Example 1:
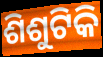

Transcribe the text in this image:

ଶିଶୁଟିକି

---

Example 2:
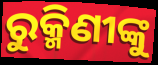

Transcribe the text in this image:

ରୁକ୍ମିଣୀଙ୍କୁ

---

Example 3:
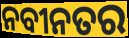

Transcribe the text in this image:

ନବୀନତର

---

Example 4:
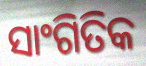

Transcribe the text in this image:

ସାଂଗିତିକ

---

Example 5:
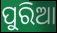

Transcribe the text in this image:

ପୁରିଆ